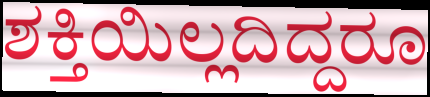
ಶಕ್ತಿಯಿಲ್ಲದಿದ್ದರೂ